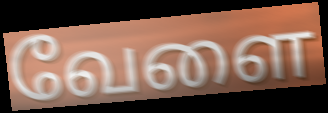
வேளை